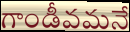
గాండీవమనే